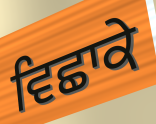
ਵਿਛਾਕੇ